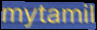
mytamil